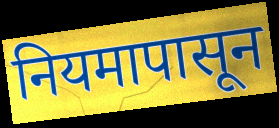
नियमापासून